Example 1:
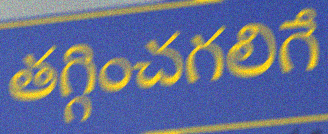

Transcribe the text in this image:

తగ్గించగలిగే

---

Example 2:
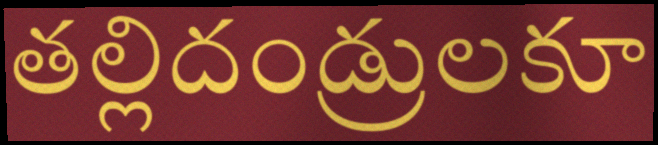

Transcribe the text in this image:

తల్లిదండ్రులకూ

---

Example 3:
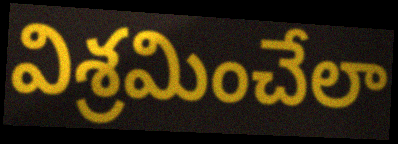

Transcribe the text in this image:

విశ్రమించేలా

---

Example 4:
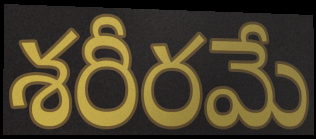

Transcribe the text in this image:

శరీరమే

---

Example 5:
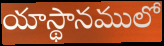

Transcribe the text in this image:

యాస్థానములో